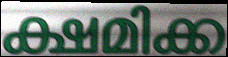
ക്ഷമിക്ക